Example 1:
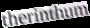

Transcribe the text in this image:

therinthum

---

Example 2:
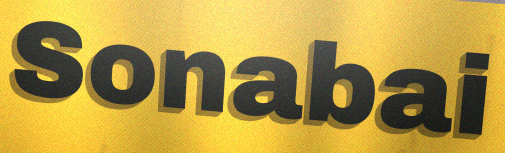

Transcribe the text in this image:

Sonabai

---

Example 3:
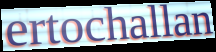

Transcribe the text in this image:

ertochallan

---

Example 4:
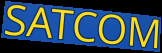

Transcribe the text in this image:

SATCOM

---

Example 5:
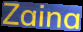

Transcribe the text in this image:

Zaina